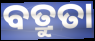
ବତ୍ରୁତା